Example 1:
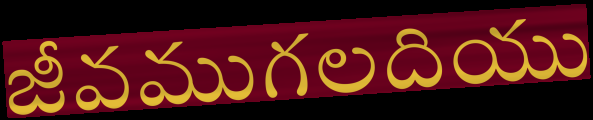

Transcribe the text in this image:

జీవముగలదియు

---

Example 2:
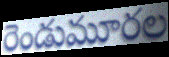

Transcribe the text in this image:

రెండుమూరల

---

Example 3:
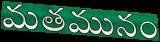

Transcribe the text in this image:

మతమునం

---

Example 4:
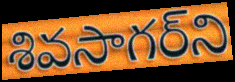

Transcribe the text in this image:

శివసాగర్‌ని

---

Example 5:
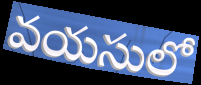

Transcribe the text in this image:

వయసులో